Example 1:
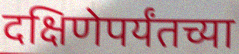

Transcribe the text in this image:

दक्षिणेपर्यंतच्या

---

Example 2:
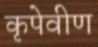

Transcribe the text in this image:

कृपेवीण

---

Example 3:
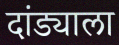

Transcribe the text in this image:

दांड्याला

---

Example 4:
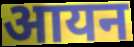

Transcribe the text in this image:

आयन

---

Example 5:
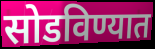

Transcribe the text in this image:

सोडविण्यात